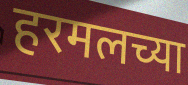
हरमलच्या